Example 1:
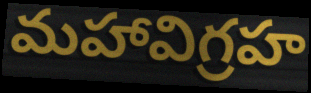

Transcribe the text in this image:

మహావిగ్రహ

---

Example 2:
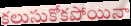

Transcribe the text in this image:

కలుసుకోకపోయినా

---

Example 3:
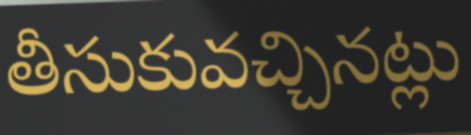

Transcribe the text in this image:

తీసుకువచ్చినట్లు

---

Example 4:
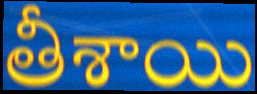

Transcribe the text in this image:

తీశాయి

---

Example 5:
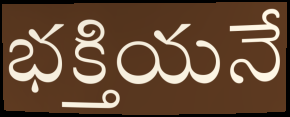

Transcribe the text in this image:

భక్తియనే